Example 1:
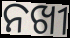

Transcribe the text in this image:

ନଖୀ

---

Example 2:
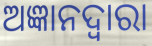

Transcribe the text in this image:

ଅଜ୍ଞାନଦ୍ଵାରା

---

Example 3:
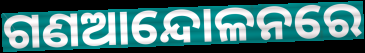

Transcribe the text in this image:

ଗଣଆନ୍ଦୋଳନରେ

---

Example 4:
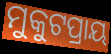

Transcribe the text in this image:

ମୁକୁଟପ୍ରାୟ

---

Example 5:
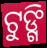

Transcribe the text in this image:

ଟୁଙ୍ଗି